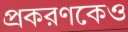
প্রকরণকেও